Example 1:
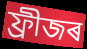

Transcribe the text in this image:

ফ্ৰীজৰ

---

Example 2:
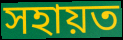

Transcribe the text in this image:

সহায়ত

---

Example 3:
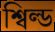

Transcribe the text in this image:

শ্বিল্ড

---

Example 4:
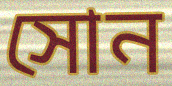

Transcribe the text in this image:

সোন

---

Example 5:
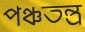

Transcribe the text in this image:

পঞ্চতন্ত্ৰ